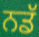
ਨਡੱ